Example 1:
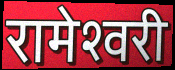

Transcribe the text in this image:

रामेश्वरी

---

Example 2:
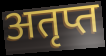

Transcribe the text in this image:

अतृप्त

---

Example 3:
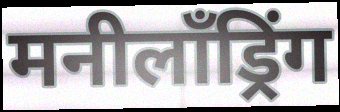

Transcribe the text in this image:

मनीलॉंड्रिंग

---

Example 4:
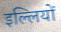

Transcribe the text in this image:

इल्लियों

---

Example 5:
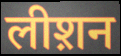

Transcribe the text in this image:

लीश़न